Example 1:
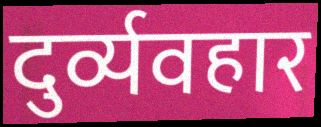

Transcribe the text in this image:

दुर्व्यवहार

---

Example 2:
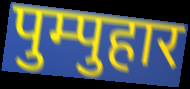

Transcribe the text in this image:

पुम्पुहार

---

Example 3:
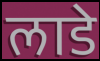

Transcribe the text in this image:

लाडे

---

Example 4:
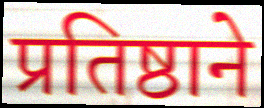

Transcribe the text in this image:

प्रतिष्ठाने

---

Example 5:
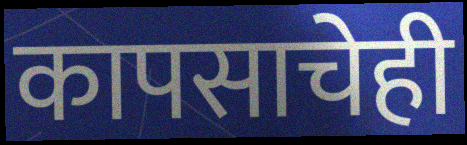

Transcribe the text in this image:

कापसाचेही